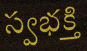
స్వభక్తి